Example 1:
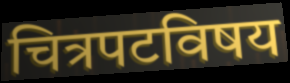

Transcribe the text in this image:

चित्रपटविषय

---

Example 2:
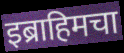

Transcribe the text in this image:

इब्राहिमचा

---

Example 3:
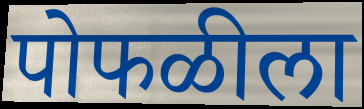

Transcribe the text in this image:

पोफळीला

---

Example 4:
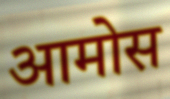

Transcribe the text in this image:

आमोस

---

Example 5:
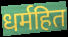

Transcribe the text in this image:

धर्महित